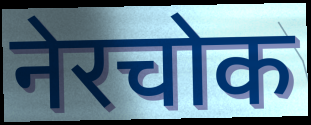
नेरचोक